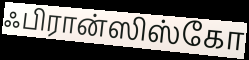
ஃபிரான்ஸிஸ்கோ